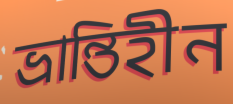
ভ্রান্তিহীন